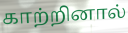
காற்றினால்